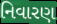
નિવારણ